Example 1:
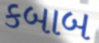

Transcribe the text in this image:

કબાબ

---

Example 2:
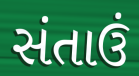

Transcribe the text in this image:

સંતાઉં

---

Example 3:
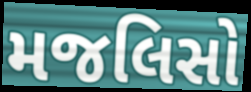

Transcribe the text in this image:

મજલિસો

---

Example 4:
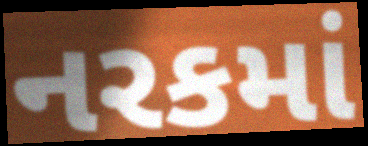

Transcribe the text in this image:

નરકમાં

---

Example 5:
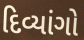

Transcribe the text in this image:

દિવ્યાંગો